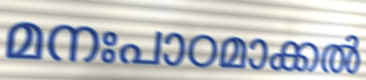
മനഃപാഠമാക്കൽ